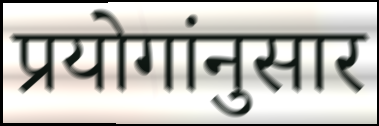
प्रयोगांनुसार